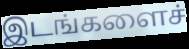
இடங்களைச்